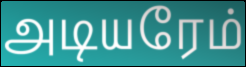
அடியரேம்